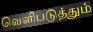
வெளிபடுத்தும்